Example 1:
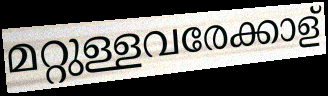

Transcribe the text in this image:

മറ്റുള്ളവരേക്കാള്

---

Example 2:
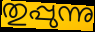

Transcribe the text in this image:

തുപ്പുന്നു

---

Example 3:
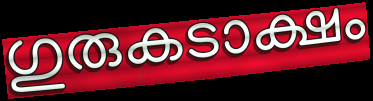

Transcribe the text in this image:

ഗുരുകടാക്ഷം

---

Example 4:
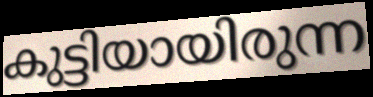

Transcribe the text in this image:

കുട്ടിയായിരുന്ന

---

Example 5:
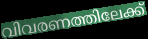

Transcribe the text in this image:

വിവരണത്തിലേക്ക്